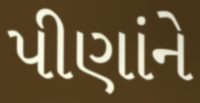
પીણાંને